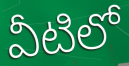
వీటిలో